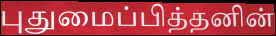
புதுமைப்பித்தனின்